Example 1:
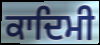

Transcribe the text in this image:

ਕਾਦਿਮੀ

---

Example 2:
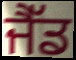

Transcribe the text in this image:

ਜੈੱਡ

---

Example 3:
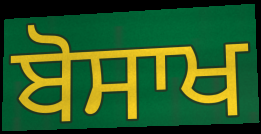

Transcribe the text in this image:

ਬੋਸਾਖ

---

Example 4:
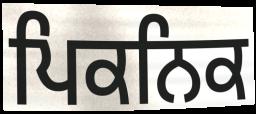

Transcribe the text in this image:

ਪਿਕਨਿਕ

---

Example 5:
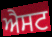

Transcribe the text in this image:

ਐਸਟ